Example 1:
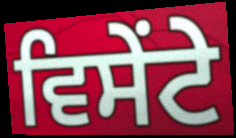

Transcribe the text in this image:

ਵਿਸੇਂਟੇ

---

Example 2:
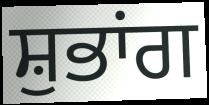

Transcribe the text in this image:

ਸ਼ੁਭਾਂਗ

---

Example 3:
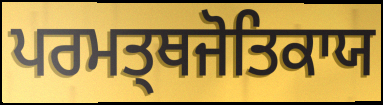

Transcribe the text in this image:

ਪਰਮਤ੍ਥਜੋਤਿਕਾਯ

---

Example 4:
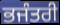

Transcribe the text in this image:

ਭਜੰਤਰੀ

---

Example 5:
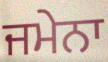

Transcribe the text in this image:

ਜਮੇਨਾ